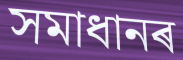
সমাধানৰ